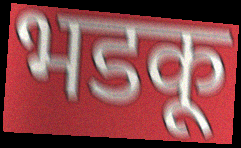
भडकू